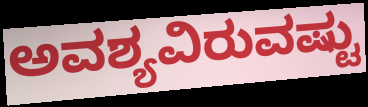
ಅವಶ್ಯವಿರುವಷ್ಟು